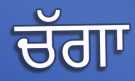
ਚੱਗਾ